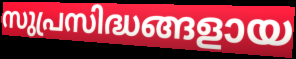
സുപ്രസിദ്ധങ്ങളായ